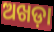
ଅଖଡ଼ା